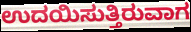
ಉದಯಿಸುತ್ತಿರುವಾಗ